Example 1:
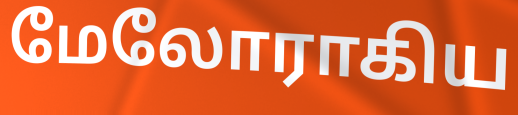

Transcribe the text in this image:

மேலோராகிய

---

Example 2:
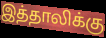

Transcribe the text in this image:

இத்தாலிக்கு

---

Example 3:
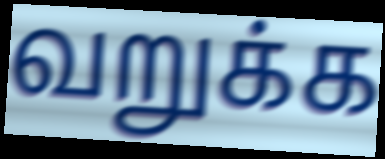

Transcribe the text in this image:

வறுக்க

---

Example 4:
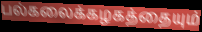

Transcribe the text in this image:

பல்கலைக்கழகத்தையும்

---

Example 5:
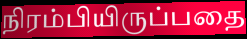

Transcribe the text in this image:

நிரம்பியிருப்பதை